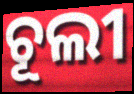
ଚୂଲୀ